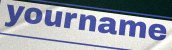
yourname